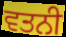
ਵਤਨੀ